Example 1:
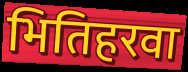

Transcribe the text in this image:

भितिहरवा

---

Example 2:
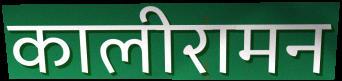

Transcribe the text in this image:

कालीरामन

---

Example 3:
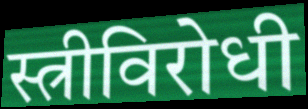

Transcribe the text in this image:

स्त्रीविरोधी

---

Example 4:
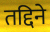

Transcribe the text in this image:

तद्दिने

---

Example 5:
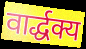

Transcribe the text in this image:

वार्द्धक्य